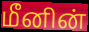
மீனின்